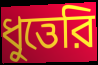
ধুত্তেরি